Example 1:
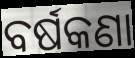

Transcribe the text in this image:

ବର୍ଷକଣା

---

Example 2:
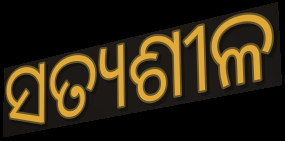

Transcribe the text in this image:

ସତ୍ୟଶୀଳ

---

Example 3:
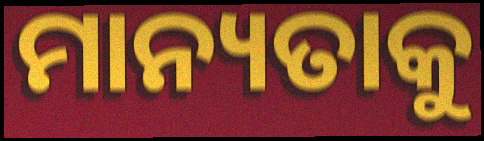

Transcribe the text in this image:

ମାନ୍ୟତାକୁ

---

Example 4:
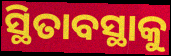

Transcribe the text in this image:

ସ୍ଥିତାବସ୍ଥାକୁ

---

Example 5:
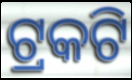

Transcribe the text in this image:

ଟ୍ରକଟି